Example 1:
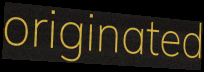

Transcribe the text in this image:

originated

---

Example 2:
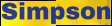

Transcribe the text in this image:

Simpson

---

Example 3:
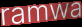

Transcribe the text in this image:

ramwa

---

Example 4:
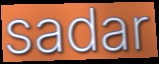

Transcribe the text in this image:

sadar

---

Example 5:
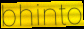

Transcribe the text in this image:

bhinto